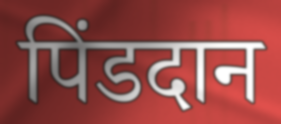
पिंडदान